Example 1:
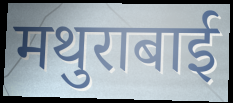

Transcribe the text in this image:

मथुराबाई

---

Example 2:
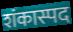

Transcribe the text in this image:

शंकास्पद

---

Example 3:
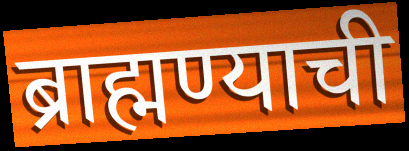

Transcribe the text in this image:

ब्राह्मण्याची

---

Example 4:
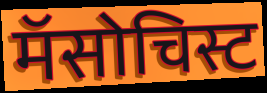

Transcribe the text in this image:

मॅसोचिस्ट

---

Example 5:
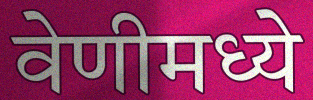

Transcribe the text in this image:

वेणीमध्ये